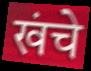
खंचे